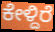
ಕೇಳ್ದಿರೆ